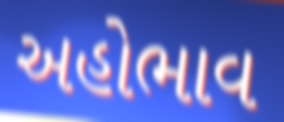
અહોભાવ